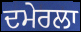
ਦਮੇਰਲਾ